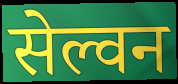
सेल्वन